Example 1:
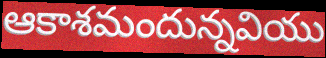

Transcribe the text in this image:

ఆకాశమందున్నవియు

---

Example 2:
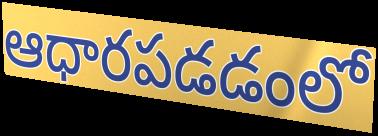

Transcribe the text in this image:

ఆధారపడడంలో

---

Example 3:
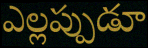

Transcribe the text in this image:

ఎల్లప్పుడూ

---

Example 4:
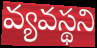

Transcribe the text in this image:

వ్యవస్థని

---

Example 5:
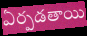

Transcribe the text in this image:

ఏర్పడతాయి